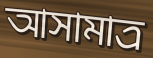
আসামাত্র